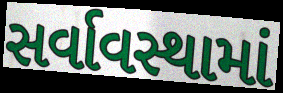
સર્વાવસ્થામાં